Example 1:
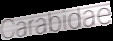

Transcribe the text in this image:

Carabidae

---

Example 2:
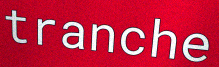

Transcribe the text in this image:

tranche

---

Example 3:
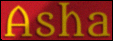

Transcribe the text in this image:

Asha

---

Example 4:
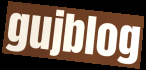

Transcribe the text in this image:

gujblog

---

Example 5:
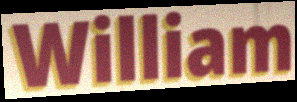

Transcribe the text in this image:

William